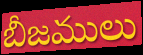
బీజములు